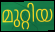
മുറ്റിയ